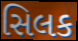
સિલક